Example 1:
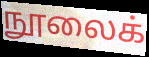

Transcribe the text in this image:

நூலைக்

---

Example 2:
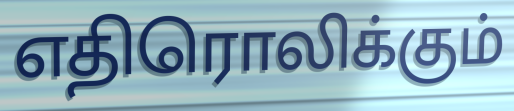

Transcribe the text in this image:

எதிரொலிக்கும்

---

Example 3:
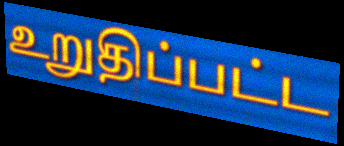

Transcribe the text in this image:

உறுதிப்பட்ட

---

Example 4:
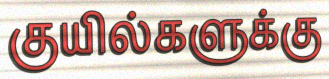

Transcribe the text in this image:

குயில்களுக்கு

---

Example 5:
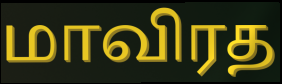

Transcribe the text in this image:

மாவிரத